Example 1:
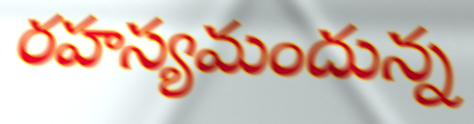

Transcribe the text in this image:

రహస్యమందున్న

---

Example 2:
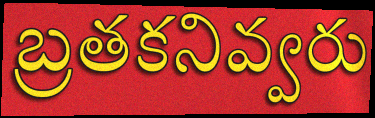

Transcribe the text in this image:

బ్రతకనివ్వరు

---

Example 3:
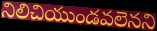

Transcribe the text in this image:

నిలిచియుండవలెనని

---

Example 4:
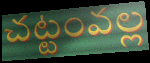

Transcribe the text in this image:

చట్టంవల్ల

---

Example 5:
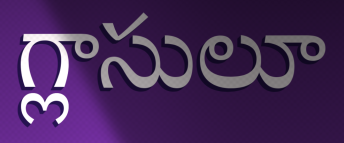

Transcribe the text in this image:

గ్లాసులూ